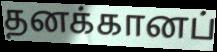
தனக்கானப்